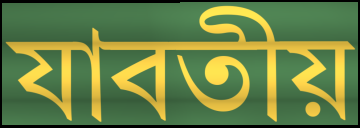
যাবতীয়